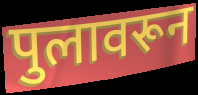
पुलावरून